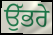
ਉੱਭਰੇ